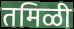
तमिळी